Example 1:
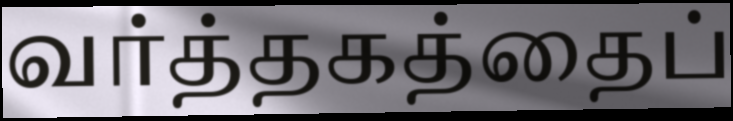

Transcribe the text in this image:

வர்த்தகத்தைப்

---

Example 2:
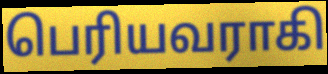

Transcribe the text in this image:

பெரியவராகி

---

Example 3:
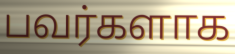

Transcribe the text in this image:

பவர்களாக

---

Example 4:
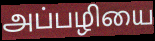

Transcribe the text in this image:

அப்பழியை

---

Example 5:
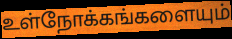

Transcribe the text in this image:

உள்நோக்கங்களையும்